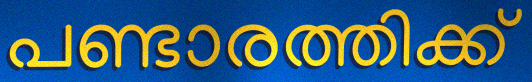
പണ്ടാരത്തിക്ക്